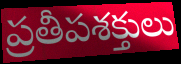
ప్రతీపశక్తులు